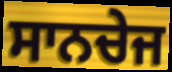
ਸਾਨਚੇਜ